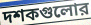
দশকগুলোর